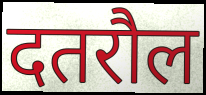
दतरौल